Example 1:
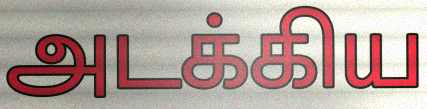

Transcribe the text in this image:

அடக்கிய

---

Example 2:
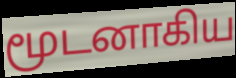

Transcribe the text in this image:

மூடனாகிய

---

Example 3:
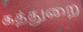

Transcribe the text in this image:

கத்துறை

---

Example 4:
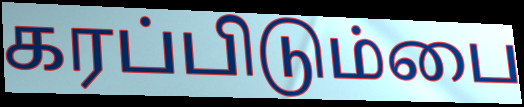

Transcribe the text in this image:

கரப்பிடும்பை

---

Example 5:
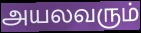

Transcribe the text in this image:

அயலவரும்